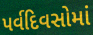
પર્વદિવસોમાં